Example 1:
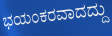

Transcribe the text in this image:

ಭಯಂಕರವಾದದ್ದು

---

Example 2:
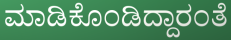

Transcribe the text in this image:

ಮಾಡಿಕೊಂಡಿದ್ದಾರಂತೆ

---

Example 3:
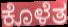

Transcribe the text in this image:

ಕೊಳೆತ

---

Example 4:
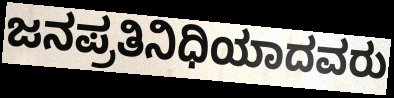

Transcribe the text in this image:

ಜನಪ್ರತಿನಿಧಿಯಾದವರು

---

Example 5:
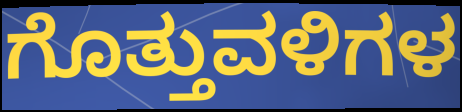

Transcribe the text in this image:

ಗೊತ್ತುವಳಿಗಳ